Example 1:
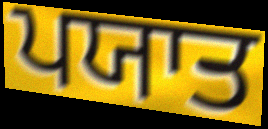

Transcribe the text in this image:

ਪਯਾਤ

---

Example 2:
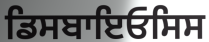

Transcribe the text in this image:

ਡਿਸਬਾਇਓਸਿਸ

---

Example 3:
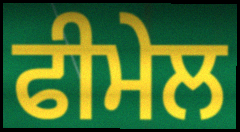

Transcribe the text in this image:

ਫੀਮੇਲ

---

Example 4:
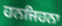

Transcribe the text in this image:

ਹਨਜਿਹਨਾ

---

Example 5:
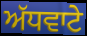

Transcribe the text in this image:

ਅੱਧਵਾਟੇ